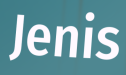
Jenis